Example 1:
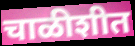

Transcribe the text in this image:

चाळीशीत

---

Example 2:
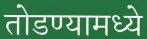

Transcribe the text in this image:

तोडण्यामध्ये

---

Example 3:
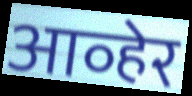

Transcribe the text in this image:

आव्हेर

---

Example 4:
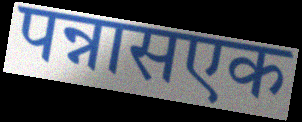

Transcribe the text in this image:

पन्नासएक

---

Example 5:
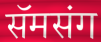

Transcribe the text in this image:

सॅमसंग